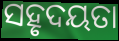
ସହୃଦୟତା